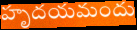
హృదయమందు